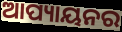
ଆପ୍ୟାୟନର